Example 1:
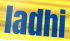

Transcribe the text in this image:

ladhi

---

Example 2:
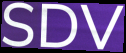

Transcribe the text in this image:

SDV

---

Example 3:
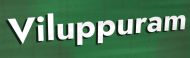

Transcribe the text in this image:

Viluppuram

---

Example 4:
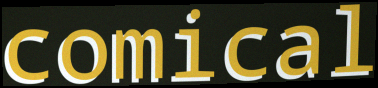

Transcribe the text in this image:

comical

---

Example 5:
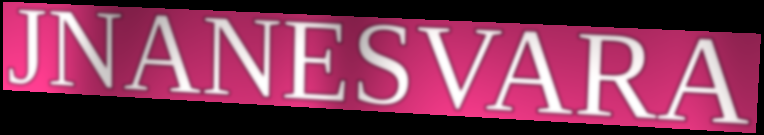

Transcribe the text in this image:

JNANESVARA